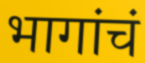
भागांचं